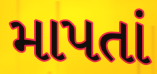
માપતાં